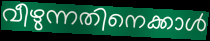
വീഴുന്നതിനെക്കാൾ